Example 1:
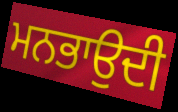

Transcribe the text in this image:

ਮਨਭਾਉਦੀ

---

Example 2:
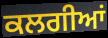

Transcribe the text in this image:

ਕਲਗੀਆਂ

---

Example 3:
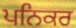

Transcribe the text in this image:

ਪਨਿਕਰ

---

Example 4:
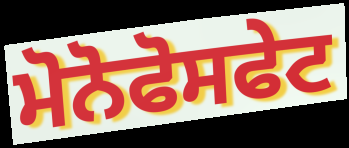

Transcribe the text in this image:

ਮੋਨੋਫੋਸਫੇਟ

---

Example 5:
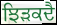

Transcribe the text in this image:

ਝਿੜਕਦੈ